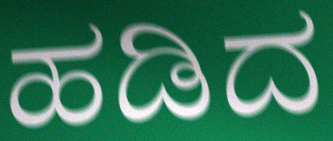
ಹಡಿದ